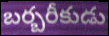
బర్బరీకుడు